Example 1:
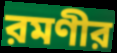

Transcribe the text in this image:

রমণীর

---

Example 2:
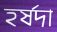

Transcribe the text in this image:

হর্ষদা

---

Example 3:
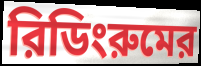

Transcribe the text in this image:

রিডিংরুমের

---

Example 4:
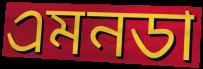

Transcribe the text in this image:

এমনডা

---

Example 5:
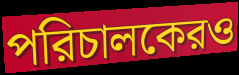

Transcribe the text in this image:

পরিচালকেরও